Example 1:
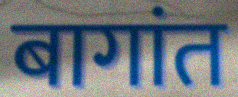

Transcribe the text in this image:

बागांत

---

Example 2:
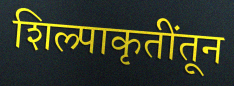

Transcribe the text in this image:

शिल्पाकृतींतून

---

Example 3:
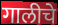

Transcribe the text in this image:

गालीचे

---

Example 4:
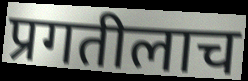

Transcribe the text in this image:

प्रगतीलाच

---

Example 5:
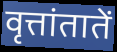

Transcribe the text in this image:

वृत्तांतातें